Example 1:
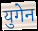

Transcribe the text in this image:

युगेन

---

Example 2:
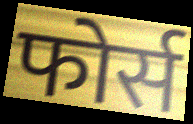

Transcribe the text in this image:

फोर्स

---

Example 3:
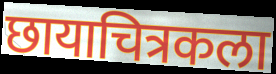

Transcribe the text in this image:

छायाचित्रकला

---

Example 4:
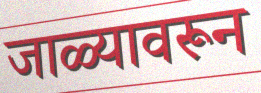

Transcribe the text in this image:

जाळ्यावरून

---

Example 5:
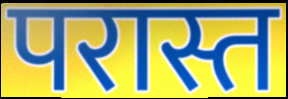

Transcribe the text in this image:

परास्त